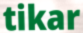
tikar